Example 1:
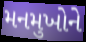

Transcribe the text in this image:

મનમુખોને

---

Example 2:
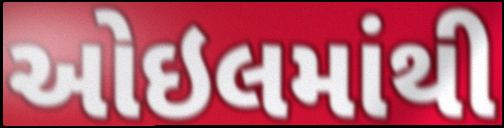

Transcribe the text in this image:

ઓઇલમાંથી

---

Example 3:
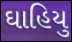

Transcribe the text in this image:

ઘાહિયુ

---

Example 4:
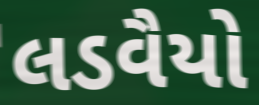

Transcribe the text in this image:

લડવૈયો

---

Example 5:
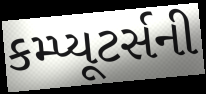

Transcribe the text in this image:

કમ્પ્યૂટર્સની